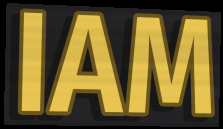
IAM